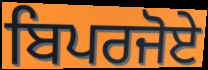
ਬਿਪਰਜੋਏ